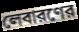
লেবারণের